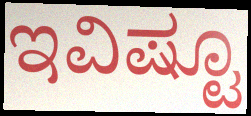
ಇವಿಷ್ಟೂ